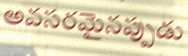
అవసరమైనప్పుడు